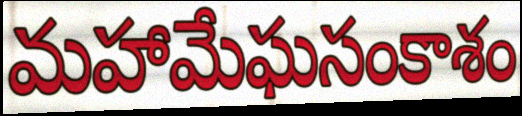
మహామేఘసంకాశం